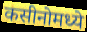
कसीनोमध्ये